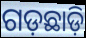
ଗଡ଼ଛାଡ଼ି